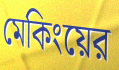
মেকিংয়ের